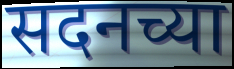
सदनच्या